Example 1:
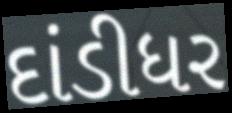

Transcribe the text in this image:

દાંડીધર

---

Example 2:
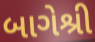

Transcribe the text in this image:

બાગેશ્રી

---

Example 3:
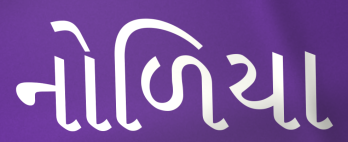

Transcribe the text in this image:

નોળિયા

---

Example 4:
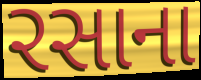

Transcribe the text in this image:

રસાના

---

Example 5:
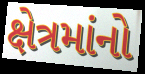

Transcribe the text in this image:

ક્ષેત્રમાંનો